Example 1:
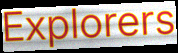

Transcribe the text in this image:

Explorers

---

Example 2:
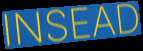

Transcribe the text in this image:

INSEAD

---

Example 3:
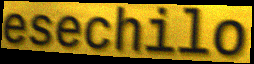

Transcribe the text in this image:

esechilo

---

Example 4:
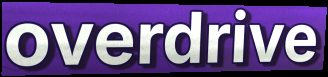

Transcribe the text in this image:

overdrive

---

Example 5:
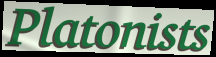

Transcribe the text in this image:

Platonists